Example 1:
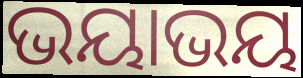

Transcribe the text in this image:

ଭୟାଭୟ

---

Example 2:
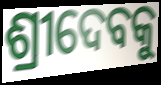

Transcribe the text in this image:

ଶ୍ରୀଦେବକୁ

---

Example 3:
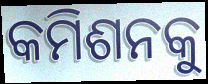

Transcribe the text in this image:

କମିଶନକୁ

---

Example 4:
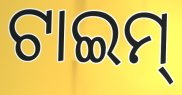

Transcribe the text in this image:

ଟାଇମ୍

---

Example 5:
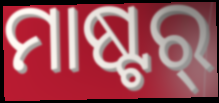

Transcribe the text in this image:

ମାଷ୍ଟର୍